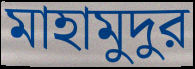
মাহামুদুর